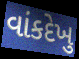
વાંકદેખુ